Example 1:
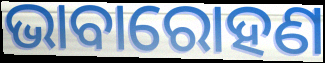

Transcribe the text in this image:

ଭାବାରୋହଣ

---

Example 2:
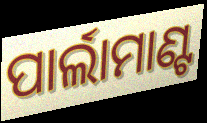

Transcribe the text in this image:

ପାର୍ଲାମାଣ୍ଟ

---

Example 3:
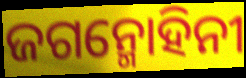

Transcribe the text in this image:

ଜଗନ୍ମୋହିନୀ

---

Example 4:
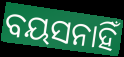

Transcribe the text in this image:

ବୟସନାହିଁ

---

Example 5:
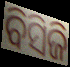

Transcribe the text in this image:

ବିସିଜି